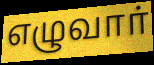
எழுவார்